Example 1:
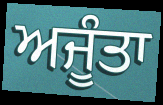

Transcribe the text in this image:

ਅਜੂੰਤਾ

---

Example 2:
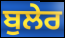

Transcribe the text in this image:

ਬੁਲੇਰ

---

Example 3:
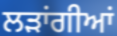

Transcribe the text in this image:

ਲੜਾਂਗੀਆਂ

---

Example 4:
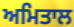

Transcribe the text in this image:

ਅਮਿਤਾਲ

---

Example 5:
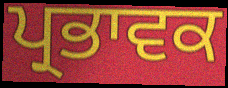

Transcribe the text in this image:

ਪ੍ਰਭਾਵਕ